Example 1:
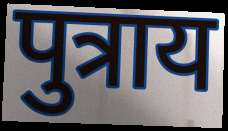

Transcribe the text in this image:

पुत्राय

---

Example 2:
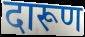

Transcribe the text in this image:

दारूण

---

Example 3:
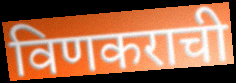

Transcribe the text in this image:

विणकराची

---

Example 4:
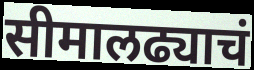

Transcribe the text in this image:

सीमालढ्याचं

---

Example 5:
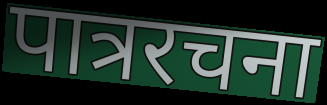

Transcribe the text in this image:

पात्ररचना